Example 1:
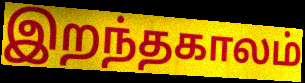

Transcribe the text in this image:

இறந்தகாலம்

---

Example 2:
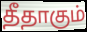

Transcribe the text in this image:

தீதாகும்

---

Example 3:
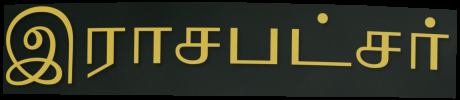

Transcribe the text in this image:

இராசபட்சர்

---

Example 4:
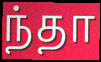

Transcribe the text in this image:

ந்தா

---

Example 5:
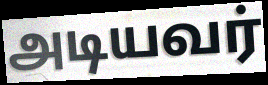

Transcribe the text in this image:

அடியவர்